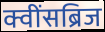
क्वींसब्रिज